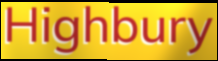
Highbury